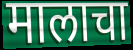
मालाचा